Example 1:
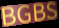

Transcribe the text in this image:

BGBS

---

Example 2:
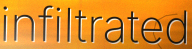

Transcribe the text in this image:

infiltrated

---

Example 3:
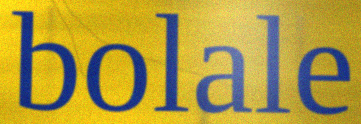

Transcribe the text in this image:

bolale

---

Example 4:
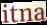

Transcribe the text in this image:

itna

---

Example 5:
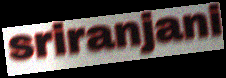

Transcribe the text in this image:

sriranjani